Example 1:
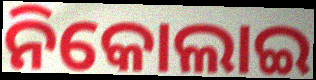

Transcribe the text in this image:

ନିକୋଲାଇ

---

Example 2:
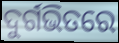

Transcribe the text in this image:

ଦୁର୍ଗଭିତରେ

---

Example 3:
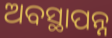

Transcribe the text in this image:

ଅବସ୍ଥାପନ୍ନ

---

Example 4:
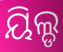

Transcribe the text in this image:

ୟିଲ୍ଡ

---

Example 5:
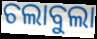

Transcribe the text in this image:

ଚଲାବୁଲା